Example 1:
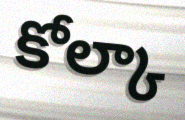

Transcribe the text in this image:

కోల్కా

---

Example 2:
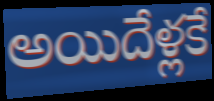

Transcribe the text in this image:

అయిదేళ్లకే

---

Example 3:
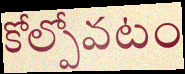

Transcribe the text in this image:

కోల్పోవటం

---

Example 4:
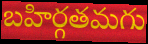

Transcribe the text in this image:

బహిర్గతమగు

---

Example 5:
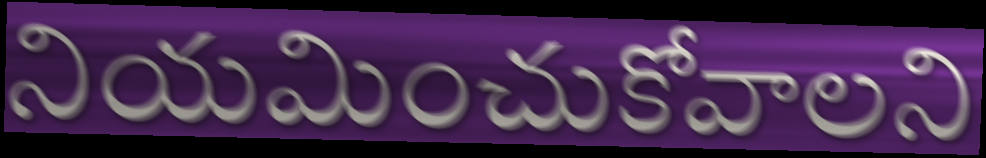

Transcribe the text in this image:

నియమించుకోవాలని